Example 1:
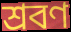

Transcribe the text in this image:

শ্রবণ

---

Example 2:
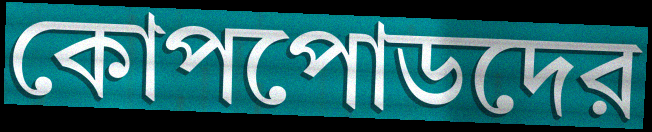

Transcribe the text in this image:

কোপপোডদের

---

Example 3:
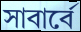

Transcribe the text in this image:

সাবার্বে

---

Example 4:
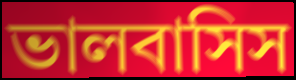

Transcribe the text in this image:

ভালবাসিস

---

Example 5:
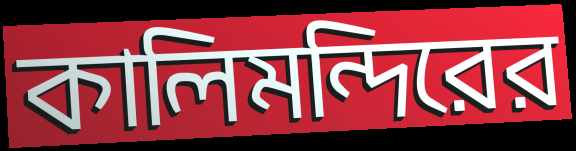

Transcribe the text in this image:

কালিমন্দিরের